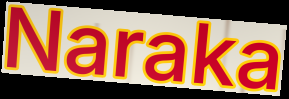
Naraka